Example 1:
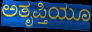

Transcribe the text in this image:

ಅತೃಪ್ತಿಯೂ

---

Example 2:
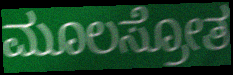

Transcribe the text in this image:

ಮೂಲಸ್ರೋತ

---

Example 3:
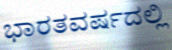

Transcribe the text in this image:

ಭಾರತವರ್ಷದಲ್ಲಿ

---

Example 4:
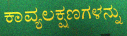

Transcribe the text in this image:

ಕಾವ್ಯಲಕ್ಷಣಗಳನ್ನು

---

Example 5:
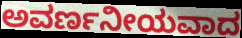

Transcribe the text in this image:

ಅವರ್ಣನೀಯವಾದ